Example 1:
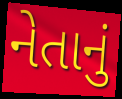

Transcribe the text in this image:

નેતાનું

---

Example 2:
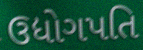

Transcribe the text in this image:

ઉદ્યોગપતિ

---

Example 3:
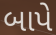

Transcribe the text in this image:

બાપે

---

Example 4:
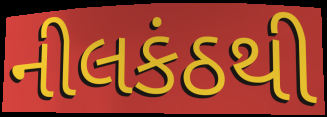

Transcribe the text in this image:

નીલકંઠથી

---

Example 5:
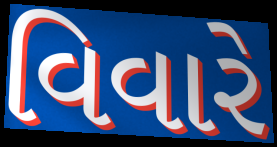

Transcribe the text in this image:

વિવારે